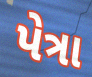
પેત્રા